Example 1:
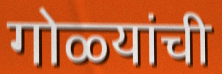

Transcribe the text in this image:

गोळ्यांची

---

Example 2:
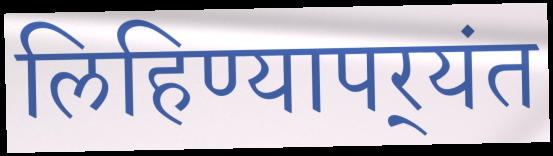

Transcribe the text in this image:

लिहिण्यापर्यंत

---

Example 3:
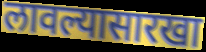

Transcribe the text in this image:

लावल्यासारखा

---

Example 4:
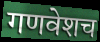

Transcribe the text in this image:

गणवेशच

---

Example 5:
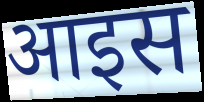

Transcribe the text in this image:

आइस